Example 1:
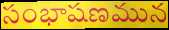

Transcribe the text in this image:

సంభాషణమున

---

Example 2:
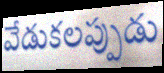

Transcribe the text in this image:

వేడుకలప్పుడు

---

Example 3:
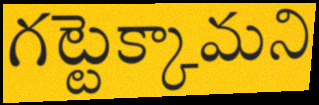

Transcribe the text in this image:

గట్టెక్కామని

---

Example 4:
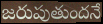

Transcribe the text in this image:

జరుపుతుందనే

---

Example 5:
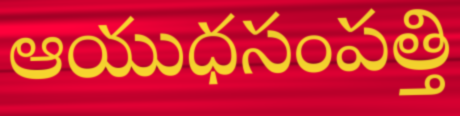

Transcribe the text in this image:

ఆయుధసంపత్తి